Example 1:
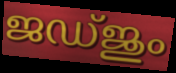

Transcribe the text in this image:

ജഡ്ജും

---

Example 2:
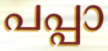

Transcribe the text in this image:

പപ്പാ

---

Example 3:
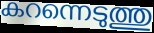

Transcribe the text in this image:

കറന്നെടുത്തു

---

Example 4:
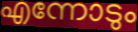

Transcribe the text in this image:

എന്നോടും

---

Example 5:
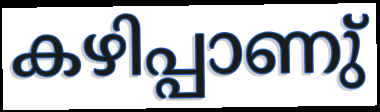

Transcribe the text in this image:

കഴിപ്പാണു്